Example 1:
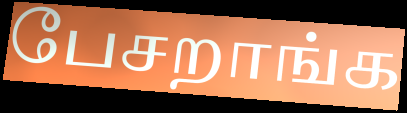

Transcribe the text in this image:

பேசறாங்க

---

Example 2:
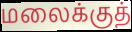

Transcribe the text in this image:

மலைக்குத்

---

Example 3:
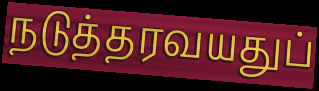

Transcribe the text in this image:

நடுத்தரவயதுப்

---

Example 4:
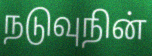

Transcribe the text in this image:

நடுவுநின்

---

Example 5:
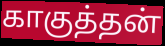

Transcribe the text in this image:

காகுத்தன்